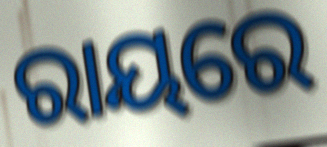
ରାୟରେ